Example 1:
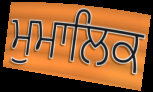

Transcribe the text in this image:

ਮੁਮਾਲਿਕ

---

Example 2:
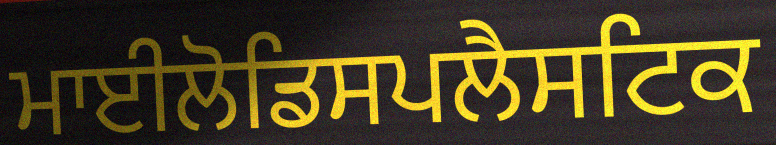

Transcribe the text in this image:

ਮਾਈਲੋਡਿਸਪਲੈਸਟਿਕ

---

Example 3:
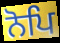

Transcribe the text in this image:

ਨੋਪਿ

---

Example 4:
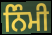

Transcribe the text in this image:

ਨਿੰਮੀ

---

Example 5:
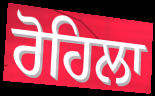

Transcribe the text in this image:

ਰੋਹਿਲਾ